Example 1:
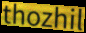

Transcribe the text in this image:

thozhil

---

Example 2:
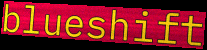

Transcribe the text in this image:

blueshift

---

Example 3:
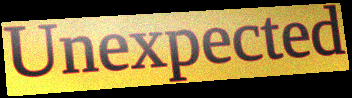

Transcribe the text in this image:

Unexpected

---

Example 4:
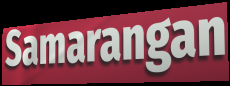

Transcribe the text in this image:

Samarangan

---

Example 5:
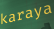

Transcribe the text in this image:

karaya